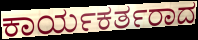
ಕಾರ್ಯಕರ್ತರಾದ